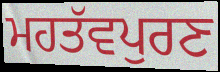
ਮਹਤੱਵਪੁਰਣ